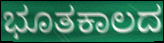
ಭೂತಕಾಲದ